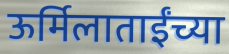
ऊर्मिलाताईंच्या